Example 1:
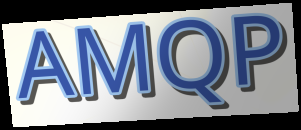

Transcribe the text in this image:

AMQP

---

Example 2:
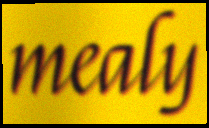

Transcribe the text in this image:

mealy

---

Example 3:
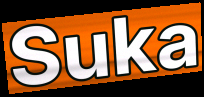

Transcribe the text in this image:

Suka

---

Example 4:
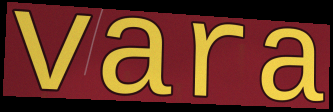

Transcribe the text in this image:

vara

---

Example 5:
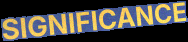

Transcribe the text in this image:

SIGNIFICANCE